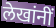
लेखांनीं